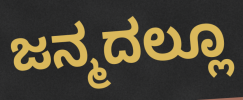
ಜನ್ಮದಲ್ಲೂ